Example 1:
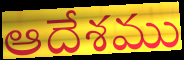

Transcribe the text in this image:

ఆదేశము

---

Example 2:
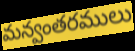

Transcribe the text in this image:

మన్వంతరములు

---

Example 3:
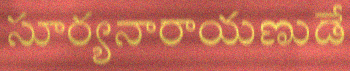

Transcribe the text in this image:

సూర్యనారాయణుడే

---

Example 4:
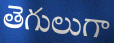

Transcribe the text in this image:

తెగులుగా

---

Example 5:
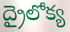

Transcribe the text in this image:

ద్రైలోక్య